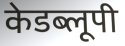
केडब्लूपी